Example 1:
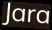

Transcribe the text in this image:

Jara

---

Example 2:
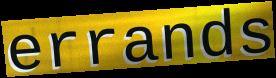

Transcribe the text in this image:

errands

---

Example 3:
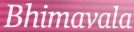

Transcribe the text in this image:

Bhimavala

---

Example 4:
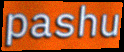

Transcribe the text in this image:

pashu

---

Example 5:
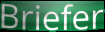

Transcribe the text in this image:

Briefer